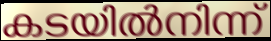
കടയിൽനിന്ന്